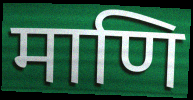
माणि